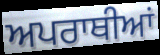
ਅਪਰਾਥੀਆਂ